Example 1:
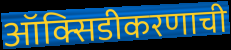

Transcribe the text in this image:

ऑक्सिडीकरणाची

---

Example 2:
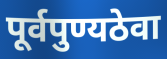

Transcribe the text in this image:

पूर्वपुण्यठेवा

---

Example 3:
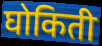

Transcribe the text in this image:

घोकिती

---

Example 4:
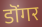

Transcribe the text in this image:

डॊंगर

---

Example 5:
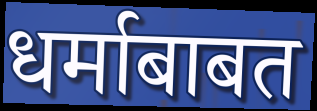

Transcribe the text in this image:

धर्माबाबत